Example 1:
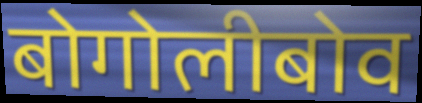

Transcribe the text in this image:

बोगोलीबोव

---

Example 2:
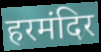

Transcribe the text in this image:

हरमंदिर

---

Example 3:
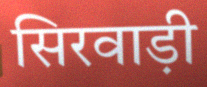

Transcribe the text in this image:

सिरवाड़ी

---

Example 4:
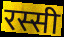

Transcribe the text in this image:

रस्सी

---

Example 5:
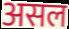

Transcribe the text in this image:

असल